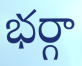
భర్గా